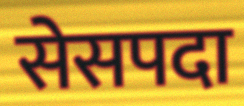
सेसपदा